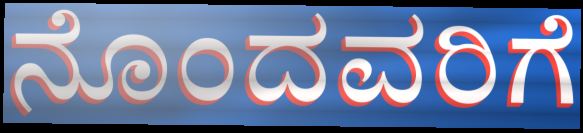
ನೊಂದವರಿಗೆ